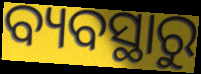
ବ୍ୟବସ୍ଥାରୁ